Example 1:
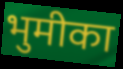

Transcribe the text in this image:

भुमीका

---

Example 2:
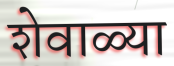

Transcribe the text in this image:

शेवाळ्या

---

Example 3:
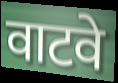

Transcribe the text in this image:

वाटवे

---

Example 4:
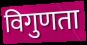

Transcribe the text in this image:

विगुणता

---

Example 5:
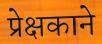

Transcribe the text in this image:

प्रेक्षकाने